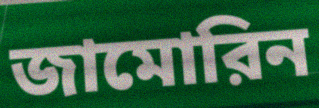
জামোরিন